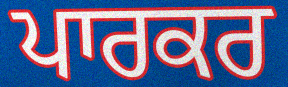
ਪਾਰਕਰ